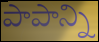
పాపాన్ని